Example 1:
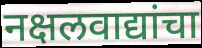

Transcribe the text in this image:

नक्षलवाद्यांचा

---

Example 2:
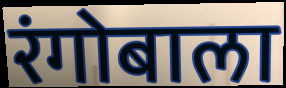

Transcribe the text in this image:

रंगोबाला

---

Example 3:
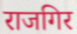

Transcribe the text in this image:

राजगिर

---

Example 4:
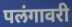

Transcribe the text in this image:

पलंगावरी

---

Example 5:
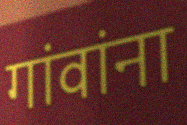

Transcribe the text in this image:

गांवांना